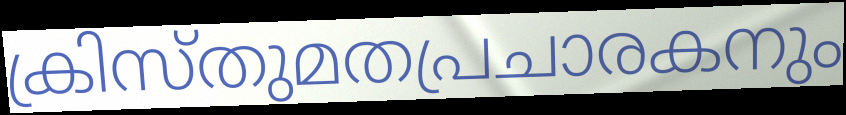
ക്രിസ്തുമതപ്രചാരകനും